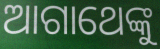
ଆଗାଥେଙ୍କୁ